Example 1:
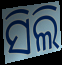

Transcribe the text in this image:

ସିଲି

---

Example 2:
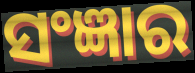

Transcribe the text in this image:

ସଂଜ୍ଞାର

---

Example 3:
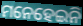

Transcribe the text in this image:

ମନେହେଇନି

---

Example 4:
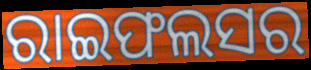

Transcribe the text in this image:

ରାଇଫଲସର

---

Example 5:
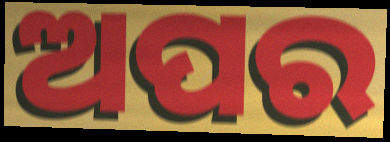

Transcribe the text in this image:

ଅପର